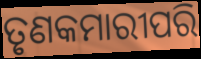
ତୃଣକମାରୀପରି